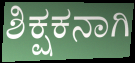
ಶಿಕ್ಷಕನಾಗಿ